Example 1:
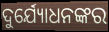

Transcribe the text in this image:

ଦୁର୍ଯ୍ୟୋଧନଙ୍କର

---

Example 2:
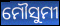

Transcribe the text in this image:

ମୌସୁମୀ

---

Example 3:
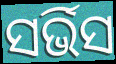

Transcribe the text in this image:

ସର୍ଭିସ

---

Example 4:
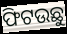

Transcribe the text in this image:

ଫିଟଉଛୁ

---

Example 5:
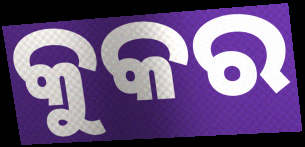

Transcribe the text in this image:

କୁକର